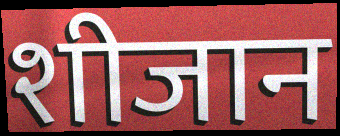
शीजान